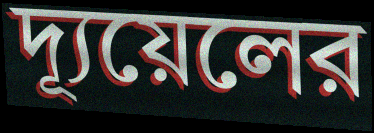
দ্যূয়েলের